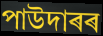
পাউদাৰৰ